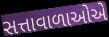
સત્તાવાળાઓએ